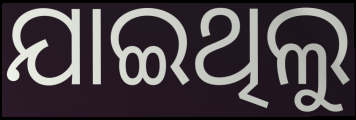
ଯାଇଥିଲୁ